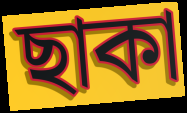
ছাকা